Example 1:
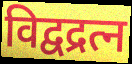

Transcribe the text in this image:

विद्वद्रत्न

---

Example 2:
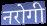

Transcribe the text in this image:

नरोगी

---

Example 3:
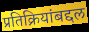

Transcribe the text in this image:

प्रतिक्रियांबद्दल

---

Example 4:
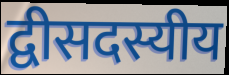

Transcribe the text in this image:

द्वीसदस्यीय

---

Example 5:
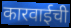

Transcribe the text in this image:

कारवाईची